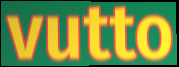
vutto